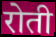
रोती